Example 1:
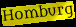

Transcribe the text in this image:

Homburg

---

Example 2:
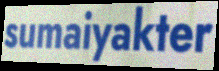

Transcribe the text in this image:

sumaiyakter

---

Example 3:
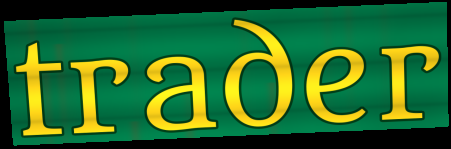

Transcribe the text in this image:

trader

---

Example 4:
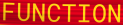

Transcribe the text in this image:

FUNCTION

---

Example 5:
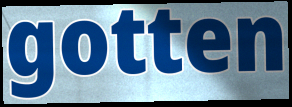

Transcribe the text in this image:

gotten